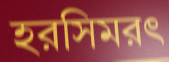
হরসিমরৎ